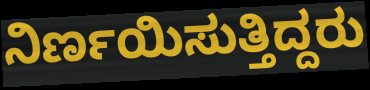
ನಿರ್ಣಯಿಸುತ್ತಿದ್ದರು